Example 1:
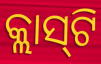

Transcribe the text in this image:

କ୍ଲାସ୍‌ଟି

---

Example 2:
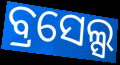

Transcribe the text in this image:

ବ୍ରସେଲ୍ସ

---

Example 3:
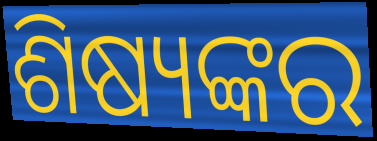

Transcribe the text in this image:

ଶିଷ୍ୟଙ୍କର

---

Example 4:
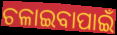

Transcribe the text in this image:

ଚଳାଇବାପାଇଁ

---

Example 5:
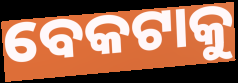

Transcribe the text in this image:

ବେକଟାକୁ